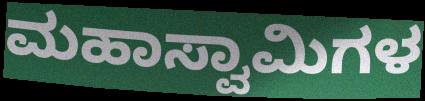
ಮಹಾಸ್ವಾಮಿಗಳ